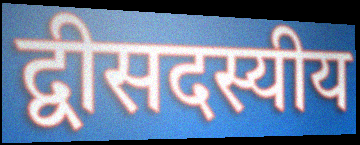
द्वीसदस्यीय